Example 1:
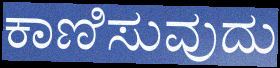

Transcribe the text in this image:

ಕಾಣಿಸುವುದು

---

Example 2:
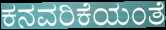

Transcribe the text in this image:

ಕನವರಿಕೆಯಂತೆ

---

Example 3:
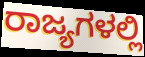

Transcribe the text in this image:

ರಾಜ್ಯಗಳಲ್ಲಿ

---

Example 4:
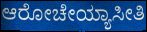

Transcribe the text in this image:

ಆರೋಚೇಯ್ಯಾಸೀತಿ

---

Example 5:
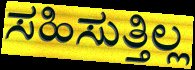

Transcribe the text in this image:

ಸಹಿಸುತ್ತಿಲ್ಲ